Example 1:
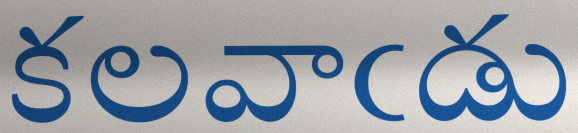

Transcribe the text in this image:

కలవాఁడు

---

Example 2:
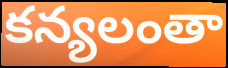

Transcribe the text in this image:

కన్యలంతా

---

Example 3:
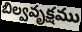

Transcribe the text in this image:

బిల్వవృక్షము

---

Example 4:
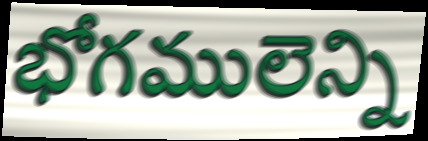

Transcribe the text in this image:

భోగములెన్ని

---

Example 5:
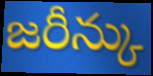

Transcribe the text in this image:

జరీన్కు